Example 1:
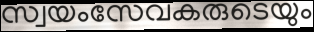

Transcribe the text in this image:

സ്വയംസേവകരുടെയും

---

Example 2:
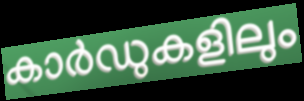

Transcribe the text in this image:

കാർഡുകളിലും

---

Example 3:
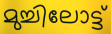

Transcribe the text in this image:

മുച്ചിലോട്ട്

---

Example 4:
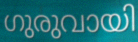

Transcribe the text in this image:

ഗുരുവായി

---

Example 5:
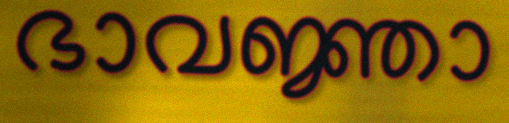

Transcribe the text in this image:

ഭാവജ്ഞാ